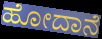
ಹೋದಾನೆ